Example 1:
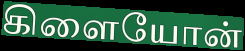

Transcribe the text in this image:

கிளையோன்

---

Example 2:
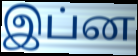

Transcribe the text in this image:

இப்ன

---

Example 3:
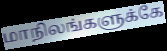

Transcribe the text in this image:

மாநிலங்களுக்கே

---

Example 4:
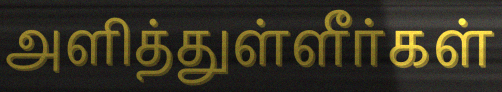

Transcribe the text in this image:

அளித்துள்ளீர்கள்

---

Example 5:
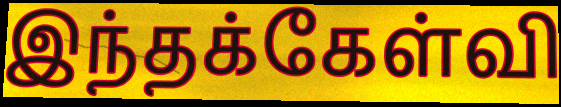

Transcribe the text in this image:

இந்தக்கேள்வி